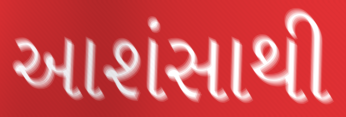
આશંસાથી